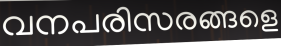
വനപരിസരങ്ങളെ